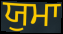
ਯੁਮਾ